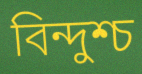
বিন্দুশ্চ